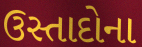
ઉસ્તાદોના